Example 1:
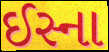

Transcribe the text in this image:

ઈસ્ના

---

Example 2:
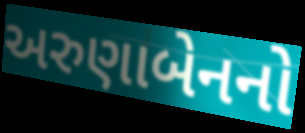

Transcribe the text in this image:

અરુણાબેનનો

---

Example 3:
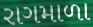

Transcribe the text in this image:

રાગમાળા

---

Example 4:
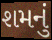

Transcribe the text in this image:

શમનું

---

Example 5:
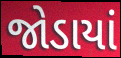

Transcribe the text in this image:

જોડાયાં